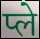
प्ले